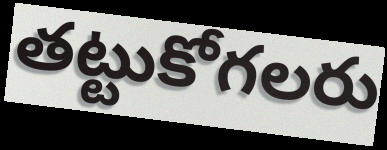
తట్టుకోగలరు